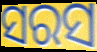
ସରସ